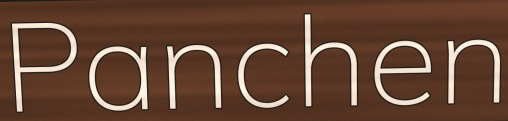
Panchen